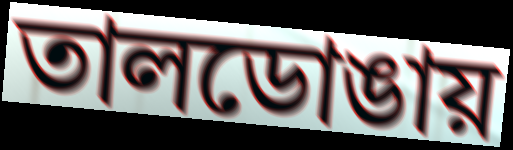
তালডোঙায়